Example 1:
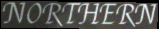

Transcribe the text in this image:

NORTHERN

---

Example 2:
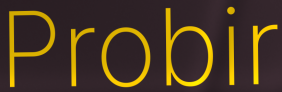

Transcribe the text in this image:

Probir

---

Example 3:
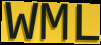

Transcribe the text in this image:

WML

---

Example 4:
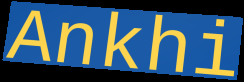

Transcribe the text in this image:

Ankhi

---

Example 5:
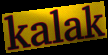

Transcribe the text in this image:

kalak